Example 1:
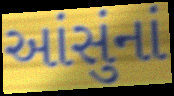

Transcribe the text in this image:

આંસુંનાં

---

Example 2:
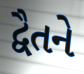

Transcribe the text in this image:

દ્વૈતને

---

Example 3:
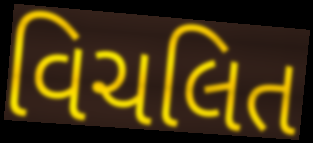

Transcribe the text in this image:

વિચલિત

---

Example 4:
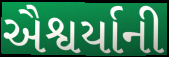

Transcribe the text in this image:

ઐશ્વર્યાની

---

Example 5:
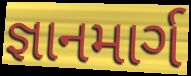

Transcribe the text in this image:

જ્ઞાનમાર્ગ